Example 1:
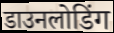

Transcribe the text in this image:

डाउनलोडिंग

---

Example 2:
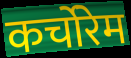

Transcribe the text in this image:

कर्चोरेम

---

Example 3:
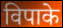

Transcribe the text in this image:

विपाके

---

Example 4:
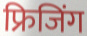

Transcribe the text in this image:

फ्रिजिंग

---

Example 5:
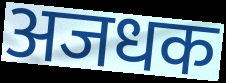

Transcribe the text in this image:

अजधक